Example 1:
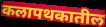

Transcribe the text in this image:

कलापथकातील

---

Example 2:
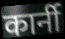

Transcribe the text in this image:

कार्नी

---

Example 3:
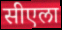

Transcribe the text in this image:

सीएला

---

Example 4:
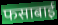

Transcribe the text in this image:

फसाबाई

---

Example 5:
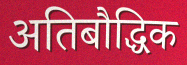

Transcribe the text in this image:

अतिबौद्धिक